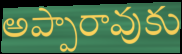
అప్పారావుకు